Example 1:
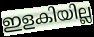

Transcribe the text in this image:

ഇളകിയില്ല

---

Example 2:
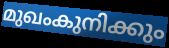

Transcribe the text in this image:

മുഖംകുനിക്കും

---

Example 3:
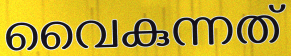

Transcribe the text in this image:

വൈകുന്നത്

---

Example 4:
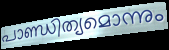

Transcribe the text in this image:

പാണ്ഡിത്യമൊന്നും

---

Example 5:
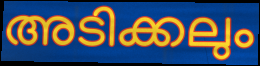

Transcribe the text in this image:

അടിക്കലും